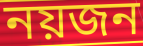
নয়জন